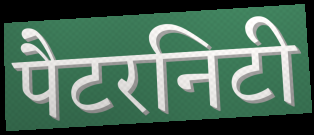
पैटरनिटी